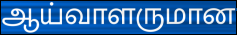
ஆய்வாளருமான